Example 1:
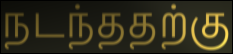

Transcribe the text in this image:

நடந்ததற்கு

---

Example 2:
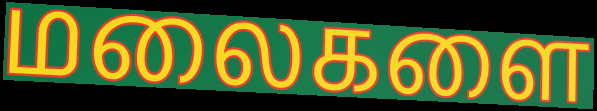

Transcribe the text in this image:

மலைகளை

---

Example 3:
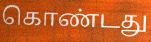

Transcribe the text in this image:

கொண்டது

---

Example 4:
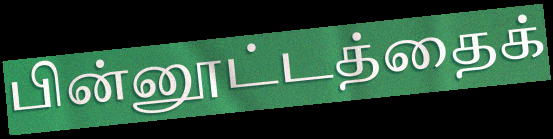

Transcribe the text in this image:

பின்னூட்டத்தைக்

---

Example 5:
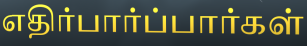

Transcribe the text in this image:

எதிர்பார்ப்பார்கள்